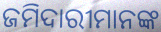
ଜମିଦାରୀମାନଙ୍କ